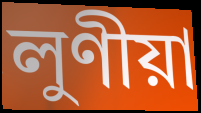
লুণীয়া